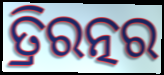
ତ୍ରିରତ୍ନର